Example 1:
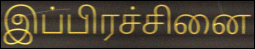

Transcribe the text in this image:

இப்பிரச்சினை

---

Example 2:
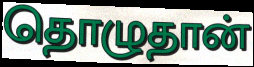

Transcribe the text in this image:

தொழுதான்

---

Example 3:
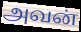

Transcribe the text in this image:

அவன்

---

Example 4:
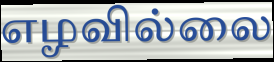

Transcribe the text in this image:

எழவில்லை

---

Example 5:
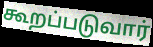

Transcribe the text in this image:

கூறப்படுவார்